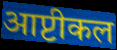
आप्टीकल